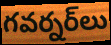
గవర్నర్‌లు